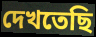
দেখতেছি